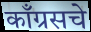
काँग्रसचे